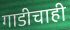
गाडीचाही